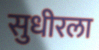
सुधीरला